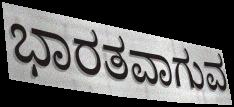
ಭಾರತವಾಗುವ